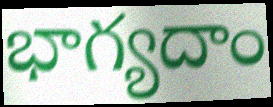
భాగ్యదాం